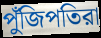
পুঁজিপতিরা